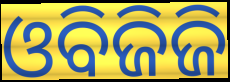
ଓବିଜିଜି